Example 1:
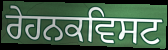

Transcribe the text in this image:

ਰੇਹਨਕਵਿਸਟ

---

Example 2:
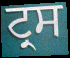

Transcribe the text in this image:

ਟ੍ਰਸ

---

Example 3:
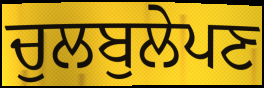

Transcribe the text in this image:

ਚੁਲਬੁਲੇਪਣ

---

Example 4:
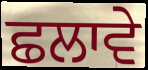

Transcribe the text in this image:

ਛਲਾਵੇ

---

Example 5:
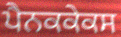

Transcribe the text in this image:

ਪੈਨਕਕੇਕਸ